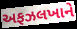
અફઝલખાને